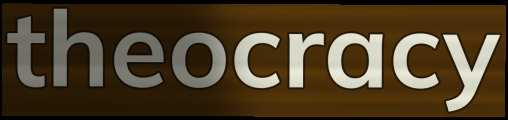
theocracy